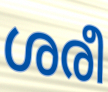
ശരീ